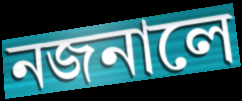
নজনালে